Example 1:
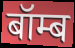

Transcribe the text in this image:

बॉम्ब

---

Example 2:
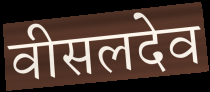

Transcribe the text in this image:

वीसलदेव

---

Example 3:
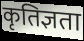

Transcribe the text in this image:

कृतिज्ञता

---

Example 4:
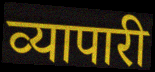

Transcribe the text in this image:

व्‍यापारी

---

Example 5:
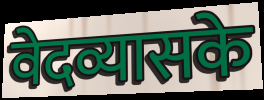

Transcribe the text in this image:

वेदव्यासके